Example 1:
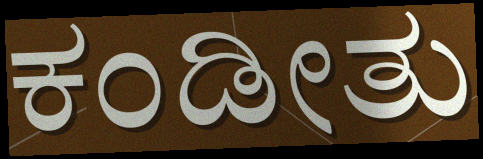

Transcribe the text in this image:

ಕಂಡೀತು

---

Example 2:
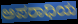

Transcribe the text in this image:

ಅಪರಾಧಿಯ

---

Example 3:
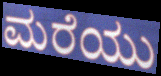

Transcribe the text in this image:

ಮರೆಯು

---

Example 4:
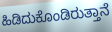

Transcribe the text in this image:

ಹಿಡಿದುಕೊಂಡಿರುತ್ತಾನೆ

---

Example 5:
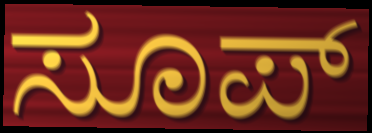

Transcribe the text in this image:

ಸೂಪ್